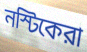
নস্টিকেরা